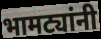
भामट्यांनी